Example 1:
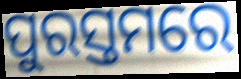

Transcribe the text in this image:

ପୁରସ୍ତମରେ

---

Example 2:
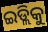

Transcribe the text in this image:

ଇଡ୍ଲିକୁ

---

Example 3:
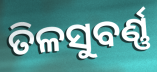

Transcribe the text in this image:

ତିଳସୁବର୍ଣ୍ଣ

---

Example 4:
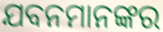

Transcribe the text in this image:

ଯବନମାନଙ୍କର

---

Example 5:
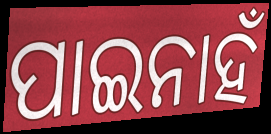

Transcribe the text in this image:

ପାଇନାହଁ